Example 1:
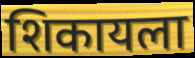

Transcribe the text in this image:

शिकायला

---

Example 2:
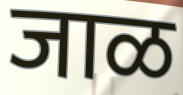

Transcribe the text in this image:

जाळ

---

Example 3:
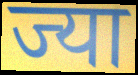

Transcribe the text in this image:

ज्या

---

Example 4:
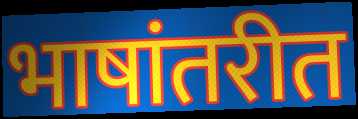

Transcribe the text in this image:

भाषांतरीत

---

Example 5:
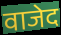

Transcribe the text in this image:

वाजेद